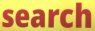
search